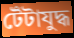
টেঁটাযুদ্ধ